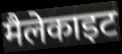
मैलेकाइट